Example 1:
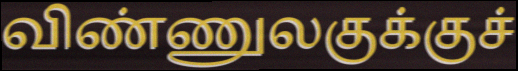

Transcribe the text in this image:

விண்ணுலகுக்குச்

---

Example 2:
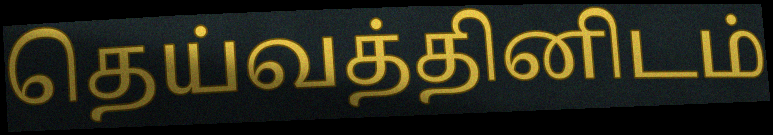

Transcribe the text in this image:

தெய்வத்தினிடம்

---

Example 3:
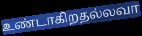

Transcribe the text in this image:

உண்டாகிறதல்லவா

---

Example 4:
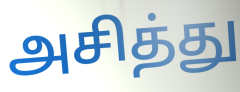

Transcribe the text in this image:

அசித்து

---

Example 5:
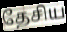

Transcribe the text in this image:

தேசிய